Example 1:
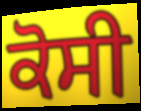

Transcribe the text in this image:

ਕੋਸੀ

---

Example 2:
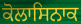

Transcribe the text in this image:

ਕੋਲਾਸਿਨਾਕ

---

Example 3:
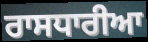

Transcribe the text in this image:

ਰਾਸਧਾਰੀਆ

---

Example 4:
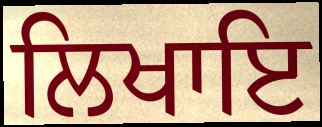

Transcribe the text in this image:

ਲਿਖਾਇ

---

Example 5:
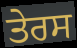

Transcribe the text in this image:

ਤੇਰਸ